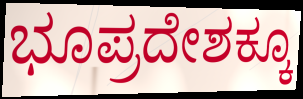
ಭೂಪ್ರದೇಶಕ್ಕೂ